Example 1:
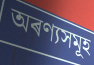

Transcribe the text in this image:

অৰণ্যসমূহ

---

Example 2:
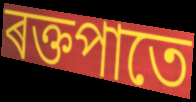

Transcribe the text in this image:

ৰক্তপাতে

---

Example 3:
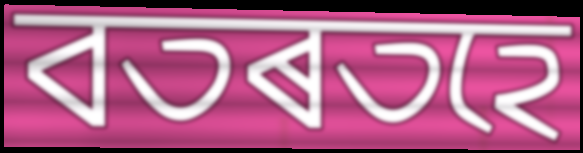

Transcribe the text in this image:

বতৰতহে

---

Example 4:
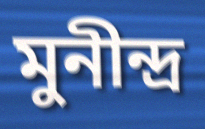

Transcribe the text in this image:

মুনীন্দ্ৰ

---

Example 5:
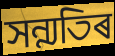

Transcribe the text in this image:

সন্মতিৰ